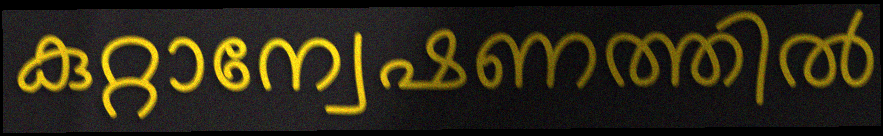
കുറ്റാന്വേഷണത്തിൽ